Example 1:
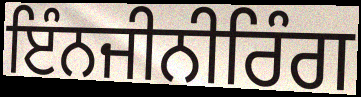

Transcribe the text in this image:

ਇੰਨਜੀਨੀਰਿੰਗ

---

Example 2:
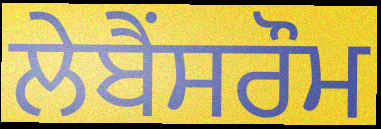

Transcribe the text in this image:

ਲੇਬੈਂਸਰੌਮ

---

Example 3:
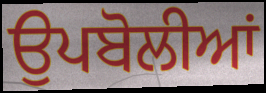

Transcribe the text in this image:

ਉਪਬੋਲੀਆਂ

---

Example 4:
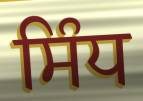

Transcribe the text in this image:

ਸਿੰਧ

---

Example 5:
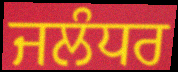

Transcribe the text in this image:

ਜਲੰਧਰ